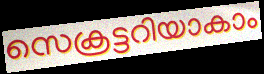
സെക്രട്ടറിയാകാം